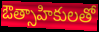
ఔత్సాహికులతో